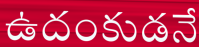
ఉదంకుడనే